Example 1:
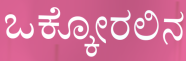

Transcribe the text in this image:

ಒಕ್ಕೋರಲಿನ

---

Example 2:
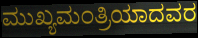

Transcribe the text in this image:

ಮುಖ್ಯಮಂತ್ರಿಯಾದವರ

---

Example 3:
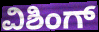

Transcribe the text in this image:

ವಿಶಿಂಗ್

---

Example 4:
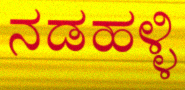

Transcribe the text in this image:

ನಡಹಳ್ಳಿ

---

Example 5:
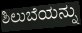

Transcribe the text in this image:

ಶಿಲುಬೆಯನ್ನು